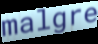
malgre